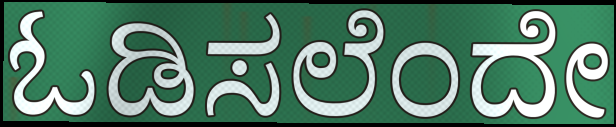
ಓಡಿಸಲೆಂದೇ